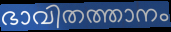
ഭാവിതത്താനം